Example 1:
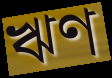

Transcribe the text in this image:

ঋণ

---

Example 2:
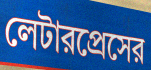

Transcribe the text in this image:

লেটারপ্রেসের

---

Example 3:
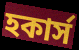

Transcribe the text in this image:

হকার্স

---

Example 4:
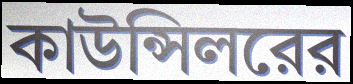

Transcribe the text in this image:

কাউন্সিলরের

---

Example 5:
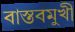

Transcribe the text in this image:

বাস্তবমুখী